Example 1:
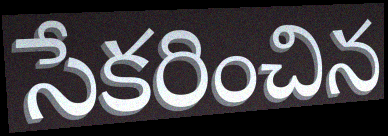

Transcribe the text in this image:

సేకరించిన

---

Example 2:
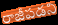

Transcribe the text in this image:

రాజీపడని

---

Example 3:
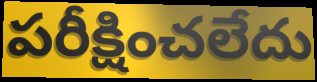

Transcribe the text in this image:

పరీక్షించలేదు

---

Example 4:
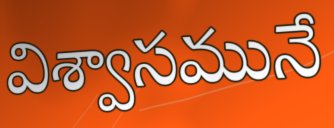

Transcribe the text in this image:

విశ్వాసమునే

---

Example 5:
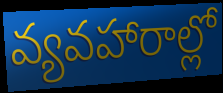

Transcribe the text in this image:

వ్యవహారాల్లో